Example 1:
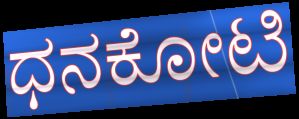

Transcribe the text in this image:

ಧನಕೋಟಿ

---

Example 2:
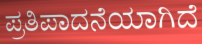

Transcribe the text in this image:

ಪ್ರತಿಪಾದನೆಯಾಗಿದೆ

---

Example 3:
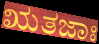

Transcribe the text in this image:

ಋತಜಾಃ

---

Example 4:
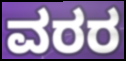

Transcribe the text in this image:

ವರರ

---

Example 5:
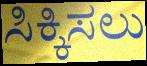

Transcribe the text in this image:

ಸಿಕ್ಕಿಸಲು